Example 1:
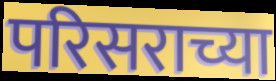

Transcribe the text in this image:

परिसराच्या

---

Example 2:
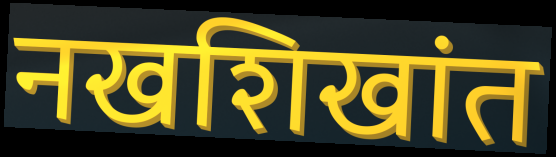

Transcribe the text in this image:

नखशिखांत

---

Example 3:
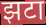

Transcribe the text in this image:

झटा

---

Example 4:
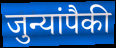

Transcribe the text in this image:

जुन्यांपैकी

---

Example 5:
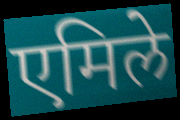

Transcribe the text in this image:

एमिले